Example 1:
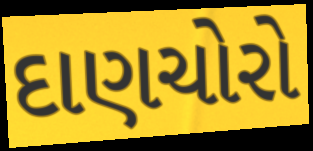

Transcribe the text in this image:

દાણચોરો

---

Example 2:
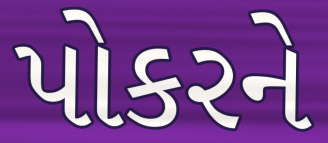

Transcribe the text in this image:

પોકરને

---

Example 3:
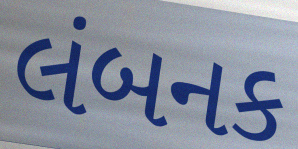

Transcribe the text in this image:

લંબનક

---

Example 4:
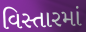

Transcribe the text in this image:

વિસ્તારમાં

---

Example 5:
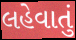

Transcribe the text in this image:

લહેવાતું